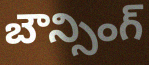
బౌన్సింగ్